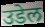
उडेल